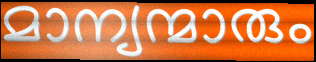
മാന്യന്മാരും